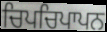
ਚਿਪਚਿਪਾਪਨ